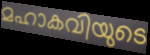
മഹാകവിയുടെ